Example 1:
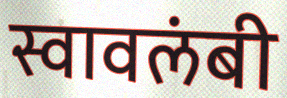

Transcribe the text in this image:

स्वावलंबी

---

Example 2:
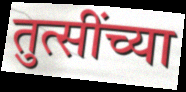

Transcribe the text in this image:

तुत्सींच्या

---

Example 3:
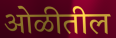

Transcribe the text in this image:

ओळीतील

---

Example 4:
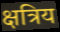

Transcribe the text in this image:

क्षत्रिय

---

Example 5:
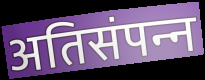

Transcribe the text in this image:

अतिसंपन्न